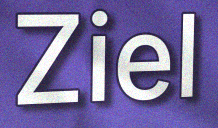
Ziel